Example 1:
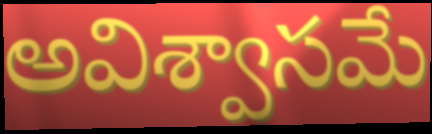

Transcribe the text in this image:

అవిశ్వాసమే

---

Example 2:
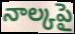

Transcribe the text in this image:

నాల్కపై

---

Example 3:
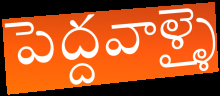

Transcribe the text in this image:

పెద్దవాళ్ళై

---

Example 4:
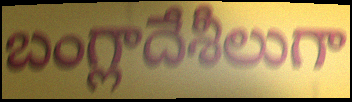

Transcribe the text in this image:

బంగ్లాదేశీలుగా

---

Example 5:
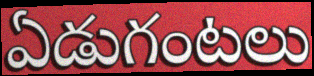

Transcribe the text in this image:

ఏడుగంటలు